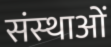
संस्‍थाओं